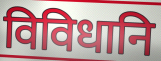
विविधानि